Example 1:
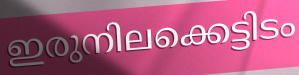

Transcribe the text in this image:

ഇരുനിലക്കെട്ടിടം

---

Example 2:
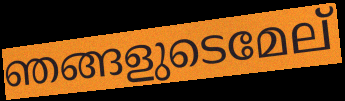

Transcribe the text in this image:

ഞങ്ങളുടെമേല്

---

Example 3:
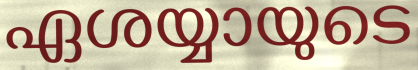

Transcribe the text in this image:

ഏശയ്യായുടെ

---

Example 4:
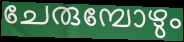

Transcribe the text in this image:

ചേരുമ്പോഴും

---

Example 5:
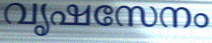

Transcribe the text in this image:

വൃഷസേനം